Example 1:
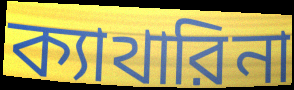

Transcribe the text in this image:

ক্যাথারিনা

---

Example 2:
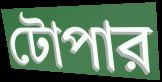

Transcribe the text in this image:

টোপার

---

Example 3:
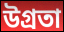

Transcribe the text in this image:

উগ্রতা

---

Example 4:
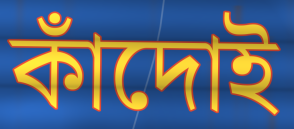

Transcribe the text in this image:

কাঁদোই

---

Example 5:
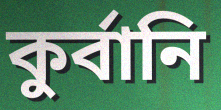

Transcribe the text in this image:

কুর্বানি